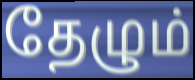
தேழும்